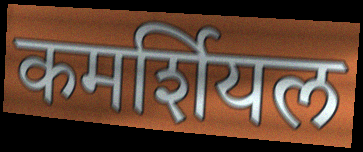
कमर्शियल